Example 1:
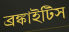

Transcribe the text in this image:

ব্রঙ্কাইটিস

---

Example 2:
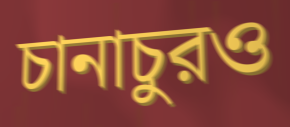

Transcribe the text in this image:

চানাচুরও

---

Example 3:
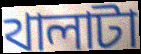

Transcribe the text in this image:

থালাটা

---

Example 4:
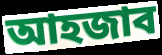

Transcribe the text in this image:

আহজাব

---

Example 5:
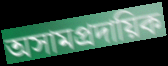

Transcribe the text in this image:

অসামপ্রদায়িক